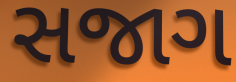
સજાગ